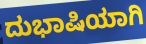
ದುಭಾಷಿಯಾಗಿ